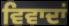
ਵਿਵਾਦਾਂ